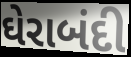
ઘેરાબંદી